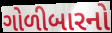
ગોળીબારનો